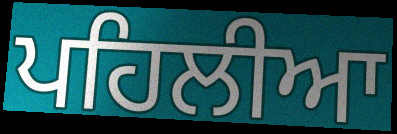
ਪਹਿਲੀਆ